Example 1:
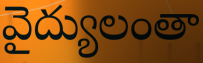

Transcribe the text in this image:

వైద్యులంతా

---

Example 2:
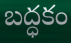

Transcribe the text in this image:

బద్ధకం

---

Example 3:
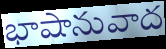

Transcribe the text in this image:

భాషానువాద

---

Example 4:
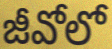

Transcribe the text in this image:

జీవోలో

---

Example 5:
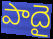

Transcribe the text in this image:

పాదై